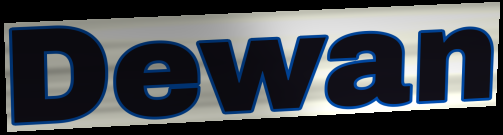
Dewan